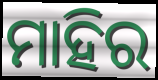
ମାହିର